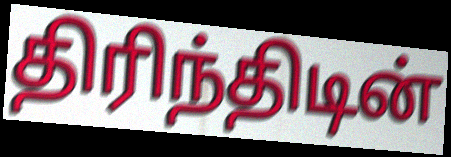
திரிந்திடின்